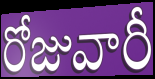
రోజువారీ